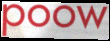
poow